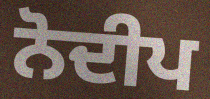
ਨੋਦੀਪ